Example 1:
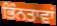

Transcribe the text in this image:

ਭਿੰਨਤਾਵਾਂ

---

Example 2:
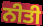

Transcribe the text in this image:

ਨੀਤੀ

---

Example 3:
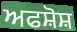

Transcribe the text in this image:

ਅਫਸ਼ੋਸ਼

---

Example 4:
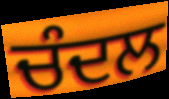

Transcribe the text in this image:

ਚੰਦਲ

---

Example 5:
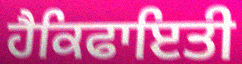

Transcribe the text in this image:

ਹੈਕਿਫਾਇਤੀ